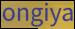
ongiya